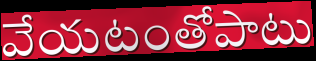
వేయటంతోపాటు